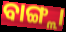
ବାଙ୍ଗ୍ଲା